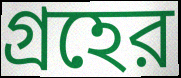
গ্রহের